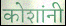
कोशांनी